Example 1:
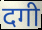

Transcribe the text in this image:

दगी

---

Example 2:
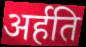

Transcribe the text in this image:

अर्हति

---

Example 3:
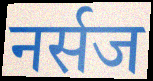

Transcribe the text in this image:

नर्सज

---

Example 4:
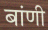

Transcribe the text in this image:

बांणी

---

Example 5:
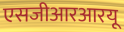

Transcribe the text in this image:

एसजीआरआरयू